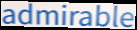
admirable